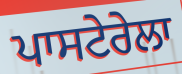
ਪਾਸਟੇਰੇਲਾ